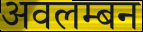
अवलम्बन